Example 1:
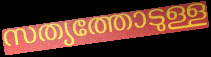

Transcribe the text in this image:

സത്യത്തോടുള്ള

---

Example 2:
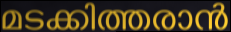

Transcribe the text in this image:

മടക്കിത്തരാൻ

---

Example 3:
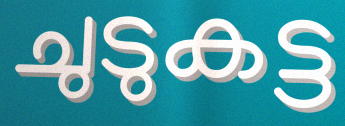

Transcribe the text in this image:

ചുടുകട്ട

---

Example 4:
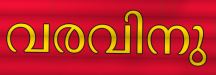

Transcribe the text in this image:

വരവിനു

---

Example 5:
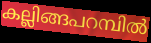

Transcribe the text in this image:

കല്ലിങ്ങപറമ്പിൽ